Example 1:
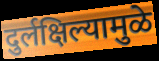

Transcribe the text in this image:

दुर्लक्षिल्यामुळे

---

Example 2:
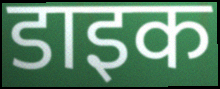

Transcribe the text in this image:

डाइक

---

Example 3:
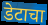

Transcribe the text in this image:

डेटाचा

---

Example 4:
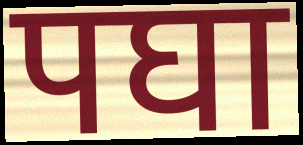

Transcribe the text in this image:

पघा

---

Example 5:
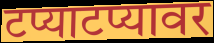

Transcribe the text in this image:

टप्याटप्यावर